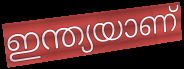
ഇന്ത്യയാണ്